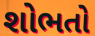
શોભતો